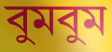
বুমবুম